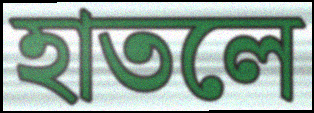
হাতলে